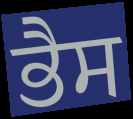
ਭੈਸ